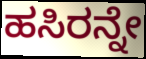
ಹಸಿರನ್ನೇ